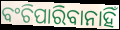
ବଂଚିପାରିବାନାହିଁ